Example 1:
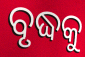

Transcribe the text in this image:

ବୃଦ୍ଧକୁ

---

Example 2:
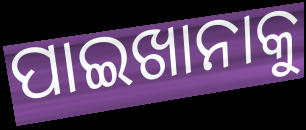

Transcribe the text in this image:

ପାଇଖାନାକୁ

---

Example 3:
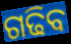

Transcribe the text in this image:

ଗଢିବ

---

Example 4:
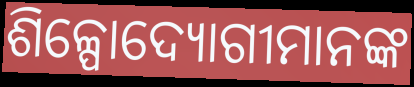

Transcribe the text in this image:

ଶିଳ୍ପୋଦ୍ୟୋଗୀମାନଙ୍କ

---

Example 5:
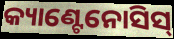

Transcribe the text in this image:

କ୍ୟାଣ୍ଟେନୋସିସ୍